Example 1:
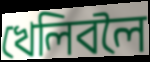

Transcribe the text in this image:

খেলিবলৈ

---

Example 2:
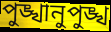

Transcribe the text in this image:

পুঙ্খানুপুঙ্খ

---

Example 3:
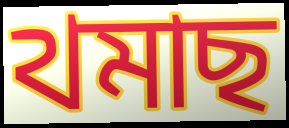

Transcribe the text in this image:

থমাছ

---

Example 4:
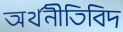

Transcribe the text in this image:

অৰ্থনীতিবিদ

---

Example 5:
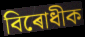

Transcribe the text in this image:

বিৰোধীক